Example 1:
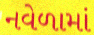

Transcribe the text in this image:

નવેળામાં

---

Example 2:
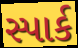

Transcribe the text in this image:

સ્પાર્ક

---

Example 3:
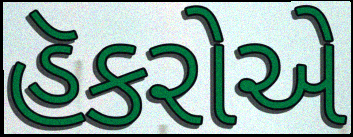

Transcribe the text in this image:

હૅકરોએ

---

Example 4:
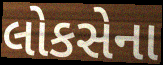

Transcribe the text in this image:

લોકસેના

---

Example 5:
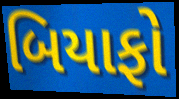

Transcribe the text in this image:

બિયાફો